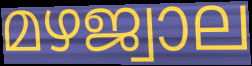
മഴജ്വാല